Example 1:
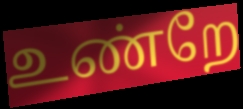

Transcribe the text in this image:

உண்றே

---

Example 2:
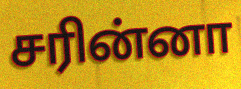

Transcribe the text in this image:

சரின்னா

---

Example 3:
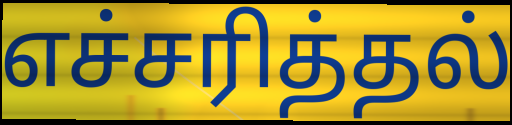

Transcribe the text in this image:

எச்சரித்தல்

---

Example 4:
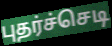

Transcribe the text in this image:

புதர்ச்செடி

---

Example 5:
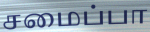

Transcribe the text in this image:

சமைப்பா